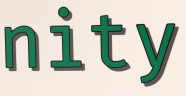
nity